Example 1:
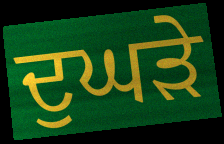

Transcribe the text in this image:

ਦੁਘੜੇ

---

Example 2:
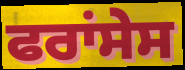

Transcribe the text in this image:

ਫਰਾਂਸੇਸ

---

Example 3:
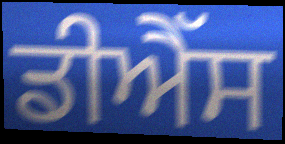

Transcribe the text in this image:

ਡੀਐੱਸ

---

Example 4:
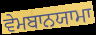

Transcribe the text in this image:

ਵੇਮਬਾਨਯਾਮਾ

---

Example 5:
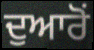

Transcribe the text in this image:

ਦੁਆਰੋਂ